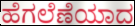
ಹೆಗಲೆಣೆಯಾದ